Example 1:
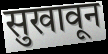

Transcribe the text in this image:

सुखावून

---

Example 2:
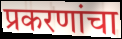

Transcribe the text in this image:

प्रकरणांचा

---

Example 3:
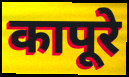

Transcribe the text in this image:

कापूरे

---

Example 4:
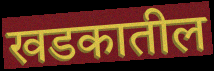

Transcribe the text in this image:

खडकातील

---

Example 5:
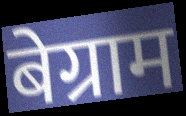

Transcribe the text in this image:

बेग्राम